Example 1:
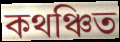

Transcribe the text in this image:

কথঞ্চিত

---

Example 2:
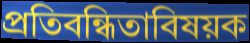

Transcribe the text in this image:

প্রতিবন্ধিতাবিষয়ক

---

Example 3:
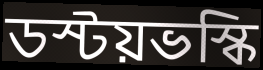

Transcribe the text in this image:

ডস্টয়ভস্কি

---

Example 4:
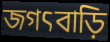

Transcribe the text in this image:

জগৎবাড়ি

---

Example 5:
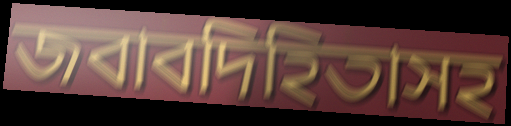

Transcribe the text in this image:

জবাবদিহিতাসহ